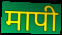
मापी